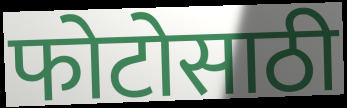
फोटोसाठी